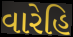
વારેહિ